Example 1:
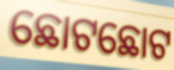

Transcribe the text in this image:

ଛୋଟଛୋଟ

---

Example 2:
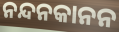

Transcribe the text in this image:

ନନ୍ଦନକାନନ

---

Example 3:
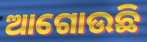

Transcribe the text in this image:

ଆଗୋଉଛି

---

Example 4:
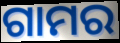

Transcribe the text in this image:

ଗାମର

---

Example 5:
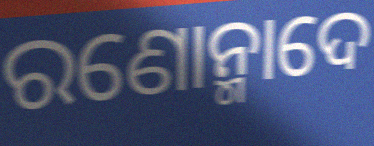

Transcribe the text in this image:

ରଣୋନ୍ମାଦେ